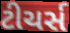
ટીચર્સ